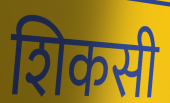
शिकसी